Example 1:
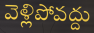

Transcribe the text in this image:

వెళ్లిపోవద్దు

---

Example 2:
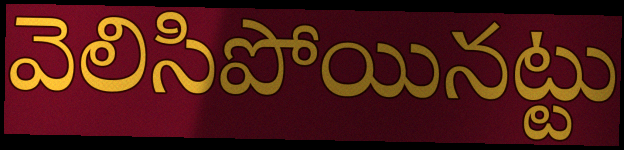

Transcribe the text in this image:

వెలిసిపోయినట్టు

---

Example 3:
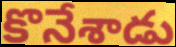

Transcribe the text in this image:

కొనేశాడు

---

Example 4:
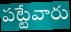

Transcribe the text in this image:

పట్టేవారు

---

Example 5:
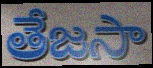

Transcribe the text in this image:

తేజసా